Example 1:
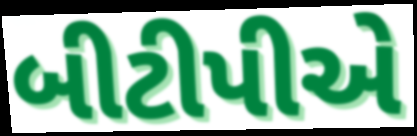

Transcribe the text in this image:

બીટીપીએ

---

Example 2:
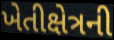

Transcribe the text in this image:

ખેતીક્ષેત્રની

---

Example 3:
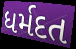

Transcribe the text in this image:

ધર્મદત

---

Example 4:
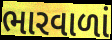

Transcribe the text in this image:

ભારવાળાં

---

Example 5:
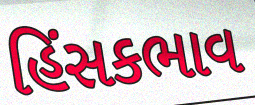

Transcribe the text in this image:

હિંસકભાવ